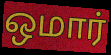
ஒமார்